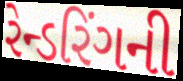
રેન્ડરિંગની